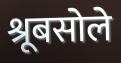
श्रूबसोले